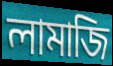
লামাজি